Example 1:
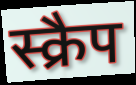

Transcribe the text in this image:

स्क्रैप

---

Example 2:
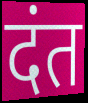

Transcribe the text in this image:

दंत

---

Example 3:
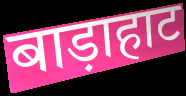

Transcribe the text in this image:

बाड़ाहाट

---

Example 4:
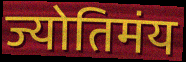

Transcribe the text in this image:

ज्योतिमंय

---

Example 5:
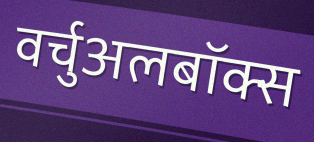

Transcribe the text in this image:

वर्चुअलबॉक्स